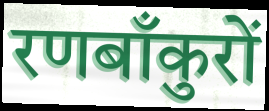
रणबाँकुरों